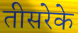
तीसरेके